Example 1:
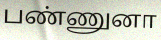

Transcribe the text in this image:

பண்ணுனா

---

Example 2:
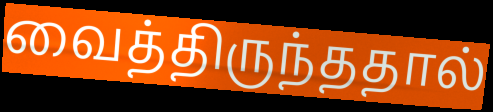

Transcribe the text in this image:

வைத்திருந்ததால்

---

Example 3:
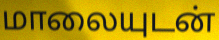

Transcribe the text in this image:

மாலையுடன்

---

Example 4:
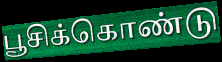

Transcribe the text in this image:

பூசிக்கொண்டு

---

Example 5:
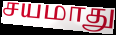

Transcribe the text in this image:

சயமாது